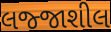
લજ્જાશીલ